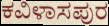
ಕವಿಳಾಸಪುರ